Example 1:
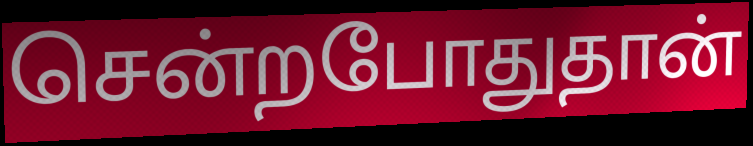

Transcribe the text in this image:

சென்றபோதுதான்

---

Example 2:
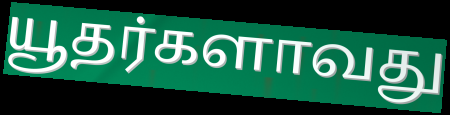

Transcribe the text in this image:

யூதர்களாவது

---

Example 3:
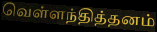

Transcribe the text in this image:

வெள்ளந்தித்தனம்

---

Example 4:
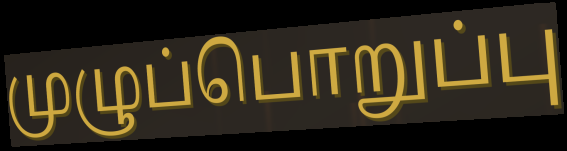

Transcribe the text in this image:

முழுப்பொறுப்பு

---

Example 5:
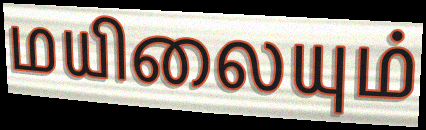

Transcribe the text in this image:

மயிலையும்